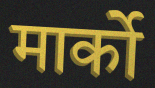
मार्को